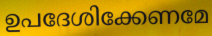
ഉപദേശിക്കേണമേ